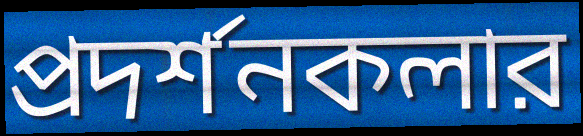
প্রদর্শনকলার